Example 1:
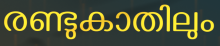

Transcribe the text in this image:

രണ്ടുകാതിലും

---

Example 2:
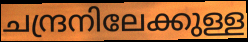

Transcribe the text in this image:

ചന്ദ്രനിലേക്കുള്ള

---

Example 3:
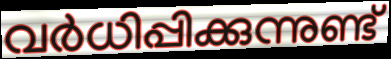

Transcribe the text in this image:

വർധിപ്പിക്കുന്നുണ്ട്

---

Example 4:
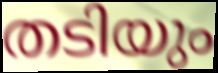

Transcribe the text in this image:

തടിയും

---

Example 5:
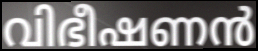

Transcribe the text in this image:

വിഭീഷണൻ